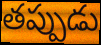
తప్పుడు